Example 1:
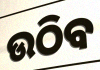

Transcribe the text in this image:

ଉଠିବ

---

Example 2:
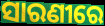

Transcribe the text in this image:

ସାରଣୀରେ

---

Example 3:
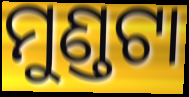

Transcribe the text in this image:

ମୁଣ୍ଡଟା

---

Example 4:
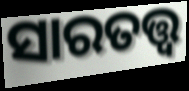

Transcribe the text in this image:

ସାରତତ୍ତ୍ଵ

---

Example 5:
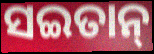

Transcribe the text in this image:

ସଇତାନ୍